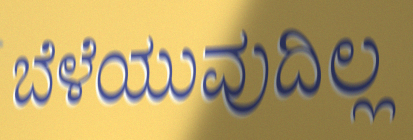
ಬೆಳೆಯುವುದಿಲ್ಲ